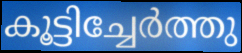
കൂട്ടിച്ചേർത്തു